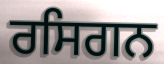
ਰਸਿਗਨ